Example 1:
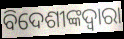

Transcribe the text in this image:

ବିଦେଶୀଙ୍କଦ୍ୱାରା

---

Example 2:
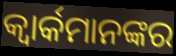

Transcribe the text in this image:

କ୍ୱାର୍କମାନଙ୍କର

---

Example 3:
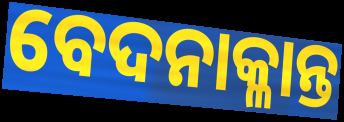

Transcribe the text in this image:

ବେଦନାକ୍ଳାନ୍ତ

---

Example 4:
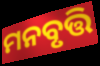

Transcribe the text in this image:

ମନବୃତ୍ତି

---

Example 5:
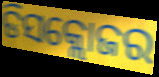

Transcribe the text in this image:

ଡିସକ୍ଲୋଜର